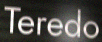
Teredo